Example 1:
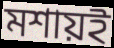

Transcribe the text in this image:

মশায়ই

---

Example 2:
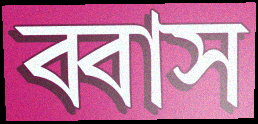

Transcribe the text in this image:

ব্বাস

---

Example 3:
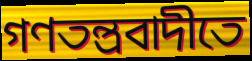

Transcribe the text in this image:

গণতন্ত্রবাদীতে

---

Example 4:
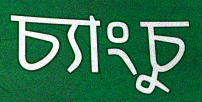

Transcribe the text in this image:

চ্যাংচু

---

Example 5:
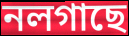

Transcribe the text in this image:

নলগাছে